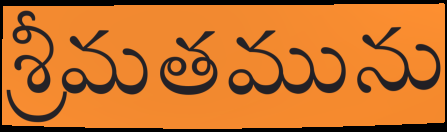
శ్రీమతమును